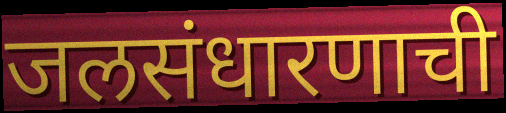
जलसंधारणाची